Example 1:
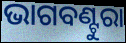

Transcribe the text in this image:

ଭାଗବଣ୍ଟୁରା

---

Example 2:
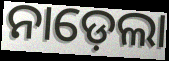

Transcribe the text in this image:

ନାଡ଼େଲା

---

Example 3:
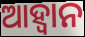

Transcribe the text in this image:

ଆହ୍ୱାନ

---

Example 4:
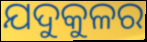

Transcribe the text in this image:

ଯଦୁକୁଳର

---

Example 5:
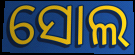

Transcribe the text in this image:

ସୋଲ